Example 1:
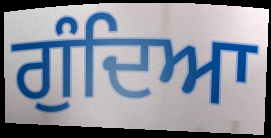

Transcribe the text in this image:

ਗੁੰਦਿਆ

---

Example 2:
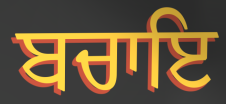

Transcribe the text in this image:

ਬਚਾਇ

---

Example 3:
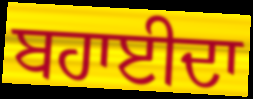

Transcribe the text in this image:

ਬਹਾਈਦਾ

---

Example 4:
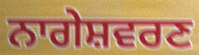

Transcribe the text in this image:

ਨਾਗੇਸ਼ਵਰਣ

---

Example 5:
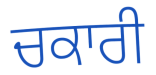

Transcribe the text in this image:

ਚਕਾਰੀ